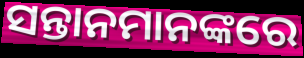
ସନ୍ତାନମାନଙ୍କରେ